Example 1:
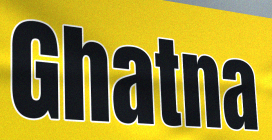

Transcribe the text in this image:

Ghatna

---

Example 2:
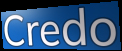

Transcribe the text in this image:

Credo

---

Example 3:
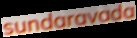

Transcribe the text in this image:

sundaravada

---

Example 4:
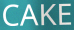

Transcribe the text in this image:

CAKE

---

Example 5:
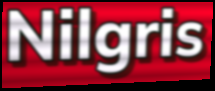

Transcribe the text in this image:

Nilgris